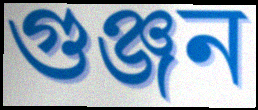
গুঞ্জন